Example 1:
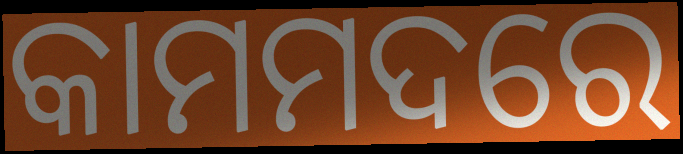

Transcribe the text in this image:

କାମମଦରେ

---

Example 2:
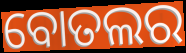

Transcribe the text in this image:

ବୋତଲର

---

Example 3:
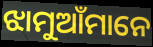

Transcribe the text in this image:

ଝାମୁଆଁମାନେ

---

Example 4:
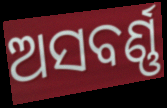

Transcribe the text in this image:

ଅସବର୍ଣ୍ଣ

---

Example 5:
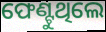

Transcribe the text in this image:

ଫେଣ୍ଟୁଥିଲେ